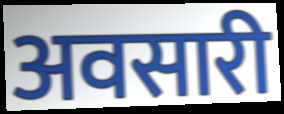
अवसारी